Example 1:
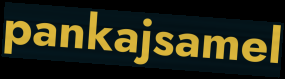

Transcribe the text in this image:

pankajsamel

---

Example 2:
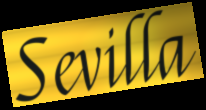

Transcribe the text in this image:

Sevilla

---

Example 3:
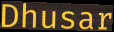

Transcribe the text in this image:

Dhusar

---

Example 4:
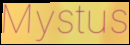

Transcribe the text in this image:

Mystus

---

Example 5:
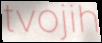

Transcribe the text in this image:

tvojih